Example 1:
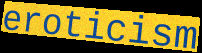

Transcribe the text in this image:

eroticism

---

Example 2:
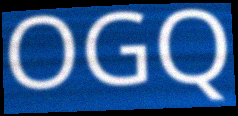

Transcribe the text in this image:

OGQ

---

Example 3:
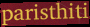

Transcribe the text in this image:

paristhiti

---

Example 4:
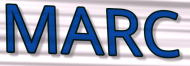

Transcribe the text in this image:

MARC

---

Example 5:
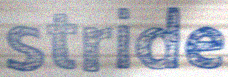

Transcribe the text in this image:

stride